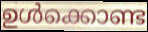
ഉൾക്കൊണ്ട